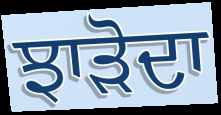
ਝਾੜੋਦਾ